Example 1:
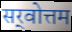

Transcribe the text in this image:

सर्वोत्तम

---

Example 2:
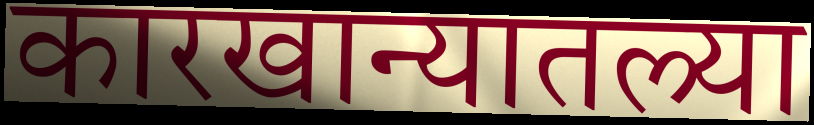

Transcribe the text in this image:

कारखान्यातल्या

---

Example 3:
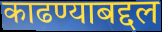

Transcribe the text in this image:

काढण्याबद्दल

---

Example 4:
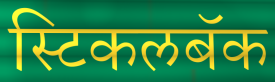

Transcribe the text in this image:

स्टिकलबॅक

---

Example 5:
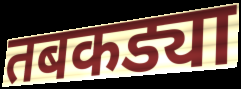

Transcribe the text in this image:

तबकड्या